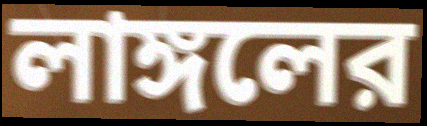
লাঙ্গলের